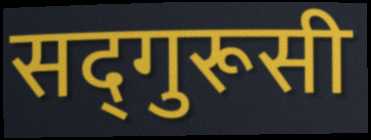
सद्‍गुरूसी